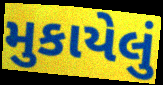
મુકાયેલું